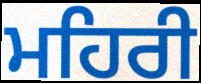
ਮਹਿਰੀ